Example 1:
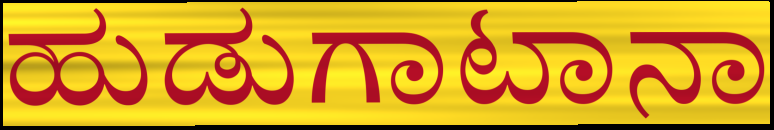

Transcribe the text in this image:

ಹುಡುಗಾಟಾನಾ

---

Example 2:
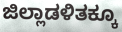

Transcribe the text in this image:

ಜಿಲ್ಲಾಡಳಿತಕ್ಕೂ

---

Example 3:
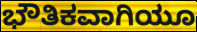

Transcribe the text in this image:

ಭೌತಿಕವಾಗಿಯೂ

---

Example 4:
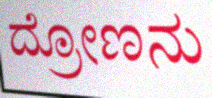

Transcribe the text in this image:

ದ್ರೋಣನು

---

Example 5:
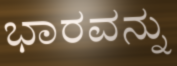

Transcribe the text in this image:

ಭಾರವನ್ನು